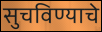
सुचविण्याचे